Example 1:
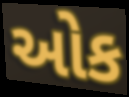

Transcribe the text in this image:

ઓક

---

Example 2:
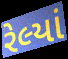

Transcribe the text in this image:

રેલ્યાં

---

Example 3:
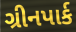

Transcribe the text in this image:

ગ્રીનપાર્ક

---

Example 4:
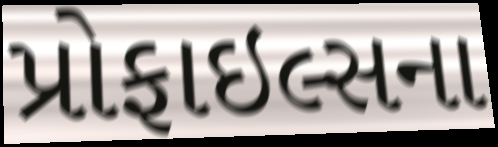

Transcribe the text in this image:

પ્રોફાઇલ્સના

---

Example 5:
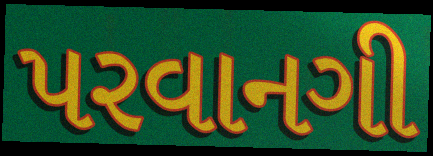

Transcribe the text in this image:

પરવાનગી